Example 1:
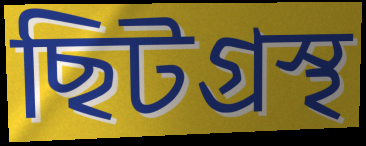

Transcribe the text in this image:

ছিটগ্রস্থ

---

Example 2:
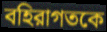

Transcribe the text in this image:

বহিরাগতকে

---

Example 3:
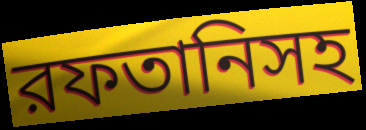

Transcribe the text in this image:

রফতানিসহ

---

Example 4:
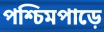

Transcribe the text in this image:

পশ্চিমপাড়ে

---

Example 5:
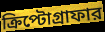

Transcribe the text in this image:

ক্রিপ্টোগ্রাফার